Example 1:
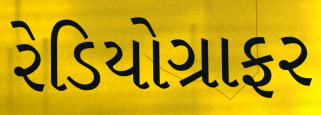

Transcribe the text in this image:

રેડિયોગ્રાફર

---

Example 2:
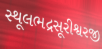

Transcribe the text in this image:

સ્થૂલભદ્રસૂરીશ્વરજી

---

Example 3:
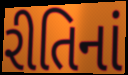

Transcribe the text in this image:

રીતિનાં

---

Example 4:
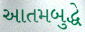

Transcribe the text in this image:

આતમબુદ્ધે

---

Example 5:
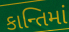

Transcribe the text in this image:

કાન્તિમાં